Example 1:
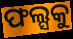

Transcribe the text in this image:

ଫଲ୍ସକୁ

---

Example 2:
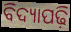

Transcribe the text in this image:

ବିଦ୍ୟାପଢ଼ି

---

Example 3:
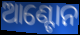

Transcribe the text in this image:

ଆଣ୍ଟୋନ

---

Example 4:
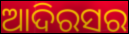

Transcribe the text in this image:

ଆଦିରସର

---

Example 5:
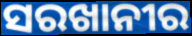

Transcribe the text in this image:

ସରଖାନୀର